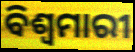
ବିଶ୍ୱମାରୀ